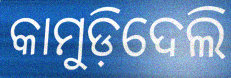
କାମୁଡ଼ିଦେଲି